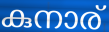
കുനാര്